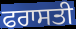
ਫਰਾਸਤੀ